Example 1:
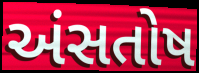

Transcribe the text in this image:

અંસતોષ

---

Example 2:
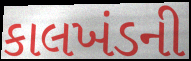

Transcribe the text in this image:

કાલખંડની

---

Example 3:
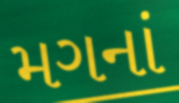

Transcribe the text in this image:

મગનાં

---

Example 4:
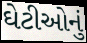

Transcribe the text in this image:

ઘેટીઓનું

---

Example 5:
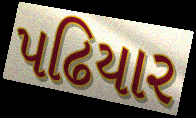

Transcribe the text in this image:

પઢિયાર